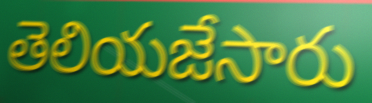
తెలియజేసారు